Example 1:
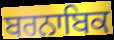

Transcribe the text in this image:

ਬਰਨਾਬਿਕ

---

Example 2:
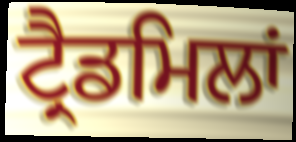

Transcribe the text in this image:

ਟ੍ਰੈਡਮਿਲਾਂ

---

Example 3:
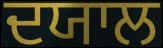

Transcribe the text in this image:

ਦਯਾਲ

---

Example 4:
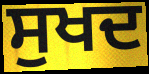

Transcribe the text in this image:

ਸੁਖਦ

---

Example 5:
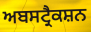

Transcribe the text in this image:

ਅਬਸਟ੍ਰੈਕਸ਼ਨ